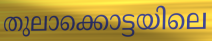
തുലാക്കൊട്ടയിലെ